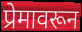
प्रेमावरून